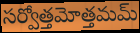
సర్వోత్తమోత్తమమ్